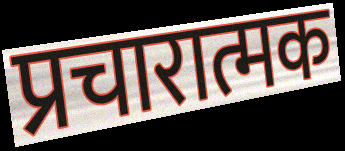
प्रचारात्मक